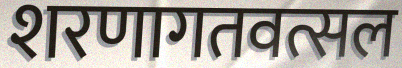
शरणागतवत्सल